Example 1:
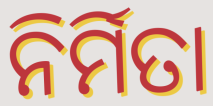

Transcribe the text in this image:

ନିର୍ମିତା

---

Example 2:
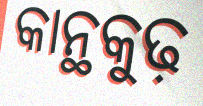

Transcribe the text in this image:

କାନ୍ଥକୁଢ଼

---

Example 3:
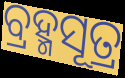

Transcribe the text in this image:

ବ୍ରହ୍ମସୂତ୍ର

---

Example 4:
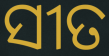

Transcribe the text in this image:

ସୀତ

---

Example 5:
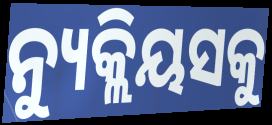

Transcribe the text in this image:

ନ୍ୟୁକ୍ଲିୟସକୁ